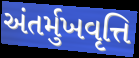
અંતર્મુખવૃત્તિ